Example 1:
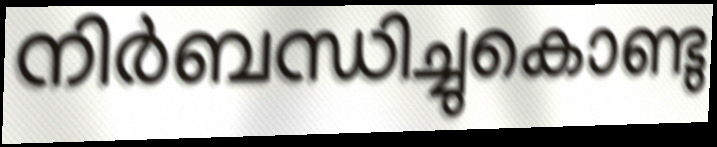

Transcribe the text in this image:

നിർബന്ധിച്ചുകൊണ്ടു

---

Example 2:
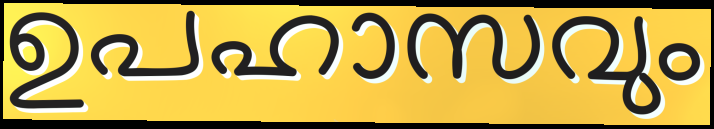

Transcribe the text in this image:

ഉപഹാസവും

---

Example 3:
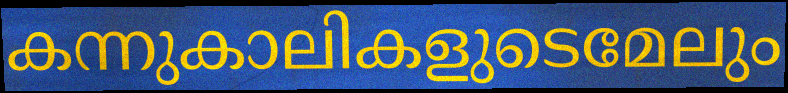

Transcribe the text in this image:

കന്നുകാലികളുടെമേലും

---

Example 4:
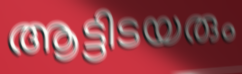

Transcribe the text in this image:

ആട്ടിടയരും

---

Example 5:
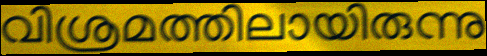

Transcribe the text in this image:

വിശ്രമത്തിലായിരുന്നു